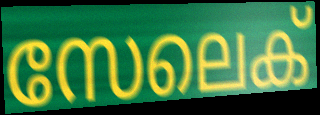
സേലെക്